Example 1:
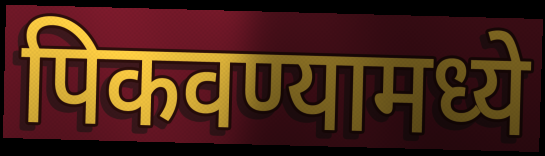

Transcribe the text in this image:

पिकवण्यामध्ये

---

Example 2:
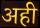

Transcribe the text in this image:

अही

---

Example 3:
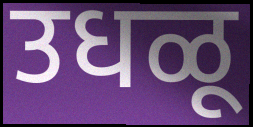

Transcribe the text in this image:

उधळू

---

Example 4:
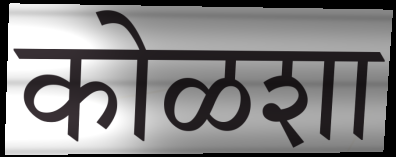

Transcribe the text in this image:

कोळशा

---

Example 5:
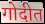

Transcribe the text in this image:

गोदीत